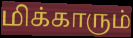
மிக்காரும்